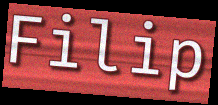
Filip